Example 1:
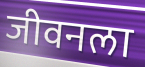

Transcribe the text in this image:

जीवनला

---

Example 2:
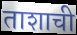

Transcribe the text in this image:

ताशाची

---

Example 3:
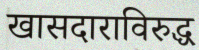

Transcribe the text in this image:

खासदाराविरुद्ध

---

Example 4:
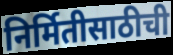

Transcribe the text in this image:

निर्मितीसाठीची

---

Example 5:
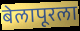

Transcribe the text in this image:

बेलापूरला